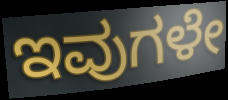
ಇವುಗಳೇ